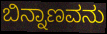
ಬಿನ್ನಾಣವನು